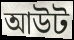
আউট